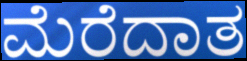
ಮೆರೆದಾತ